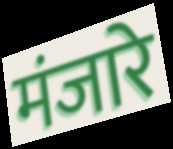
मंजारे